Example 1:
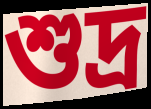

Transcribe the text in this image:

শুদ্ৰ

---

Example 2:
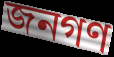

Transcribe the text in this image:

জনগণ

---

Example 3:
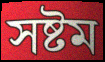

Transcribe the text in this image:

সষ্টম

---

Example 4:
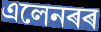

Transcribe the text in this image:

এলেনৰৰ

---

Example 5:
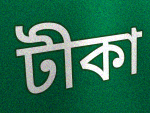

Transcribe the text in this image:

টীকা